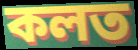
কলত